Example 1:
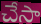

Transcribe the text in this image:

చేసా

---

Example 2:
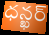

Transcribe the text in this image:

ధన్ఖర్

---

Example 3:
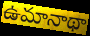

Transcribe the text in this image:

ఉమానాథా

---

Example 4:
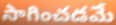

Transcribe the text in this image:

సాగించడమే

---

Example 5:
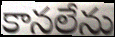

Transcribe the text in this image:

కానలేను